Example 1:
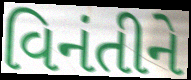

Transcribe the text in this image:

વિનંતીને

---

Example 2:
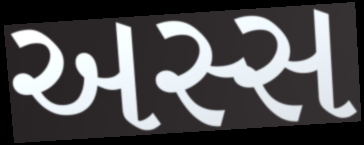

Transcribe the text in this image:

અસ્સ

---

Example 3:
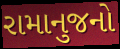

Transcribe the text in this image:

રામાનુજનો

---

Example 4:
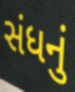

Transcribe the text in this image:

સંધનું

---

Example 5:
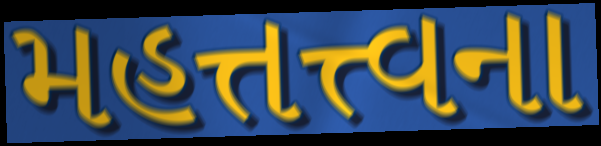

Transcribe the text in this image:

મહત્તત્ત્વના